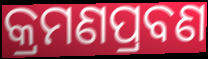
କ୍ରମଣପ୍ରବଣ